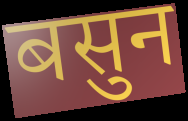
बसुन